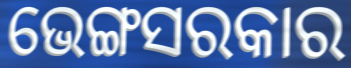
ଭେଙ୍ଗସରକାର